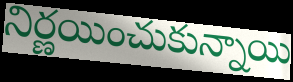
నిర్ణయించుకున్నాయి